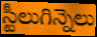
స్టీలుగిన్నెలు